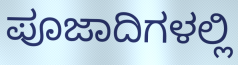
ಪೂಜಾದಿಗಳಲ್ಲಿ